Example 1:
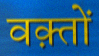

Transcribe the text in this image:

वक़्तों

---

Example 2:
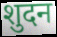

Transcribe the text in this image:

शुदन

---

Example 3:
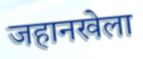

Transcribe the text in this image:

जहानखेला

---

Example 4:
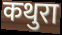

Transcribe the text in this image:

कथुरा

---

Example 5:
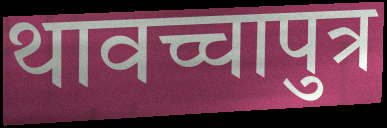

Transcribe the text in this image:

थावच्चापुत्र